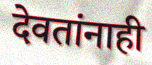
देवतांनाही